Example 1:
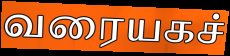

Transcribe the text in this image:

வரையகச்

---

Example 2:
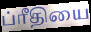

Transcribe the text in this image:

ப்ரீதியை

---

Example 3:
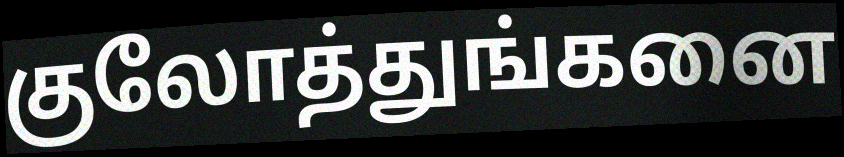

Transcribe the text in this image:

குலோத்துங்கனை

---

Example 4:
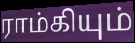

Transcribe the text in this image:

ராம்கியும்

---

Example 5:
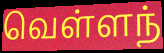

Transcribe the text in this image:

வெள்ளந்